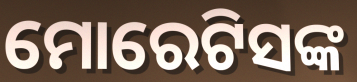
ମୋରେଟିସଙ୍କ